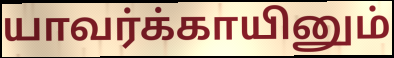
யாவர்க்காயினும்